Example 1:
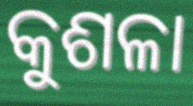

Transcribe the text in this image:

କୁଶଳା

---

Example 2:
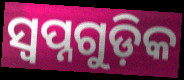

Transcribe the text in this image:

ସ୍ଵପ୍ନଗୁଡ଼ିକ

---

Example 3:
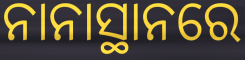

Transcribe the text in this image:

ନାନାସ୍ଥାନରେ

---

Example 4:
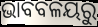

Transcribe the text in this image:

ଭାବବଳୟରୁ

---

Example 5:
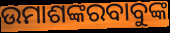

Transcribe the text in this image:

ଉମାଶଙ୍କରବାବୁଙ୍କ